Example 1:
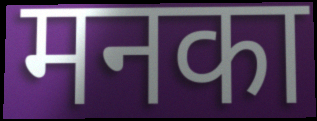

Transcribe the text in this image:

मनका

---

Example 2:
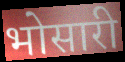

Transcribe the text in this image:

भोसारी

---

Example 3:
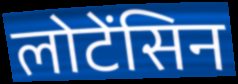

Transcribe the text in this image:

लोटेंसिन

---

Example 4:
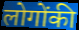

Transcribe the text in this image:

लोगोंकी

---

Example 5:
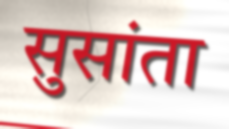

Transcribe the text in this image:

सुसांता